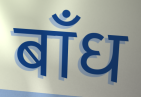
बाँध